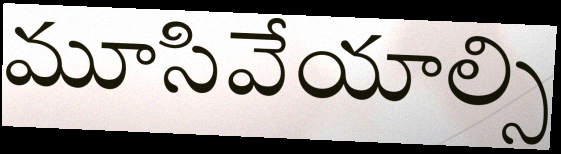
మూసివేయాల్సి